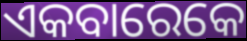
ଏକବାରେକେ